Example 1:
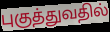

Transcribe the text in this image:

புகுத்துவதில்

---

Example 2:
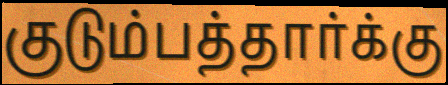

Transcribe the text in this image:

குடும்பத்தார்க்கு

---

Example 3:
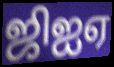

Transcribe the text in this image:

ஜிஐஏ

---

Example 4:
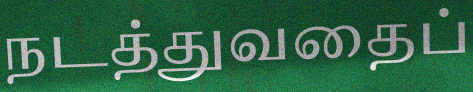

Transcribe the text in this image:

நடத்துவதைப்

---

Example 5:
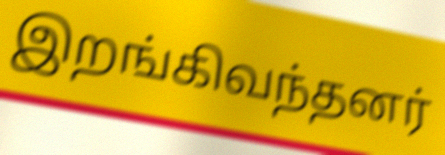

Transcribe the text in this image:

இறங்கிவந்தனர்